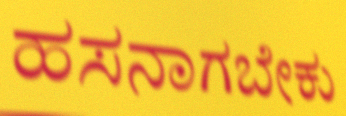
ಹಸನಾಗಬೇಕು